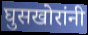
घुसखोरांनी